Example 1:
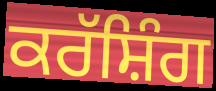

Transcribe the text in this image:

ਕਰੱਸ਼ਿੰਗ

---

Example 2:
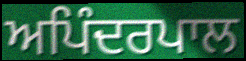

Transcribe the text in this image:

ਅਪਿੰਦਰਪਾਲ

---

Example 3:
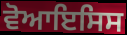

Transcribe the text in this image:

ਵੋਆਇਸਿਸ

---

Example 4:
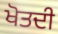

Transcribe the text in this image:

ਖੋਤਦੀ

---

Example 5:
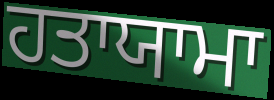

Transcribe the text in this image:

ਹਤਾਯਾਮਾ